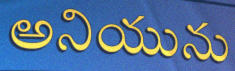
అనియును